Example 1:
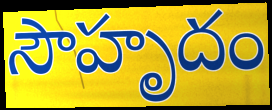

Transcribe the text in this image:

సౌహృదం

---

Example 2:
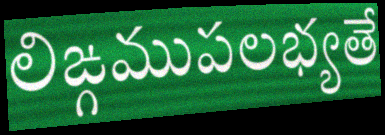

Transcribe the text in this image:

లిఙ్గముపలభ్యతే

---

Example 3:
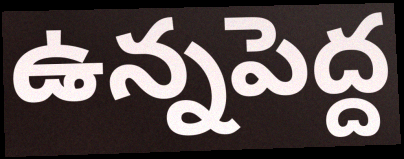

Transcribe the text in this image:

ఉన్నపెద్ద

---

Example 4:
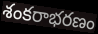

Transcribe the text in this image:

శంకరాభరణం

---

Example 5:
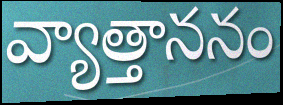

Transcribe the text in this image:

వ్యాత్తాననం